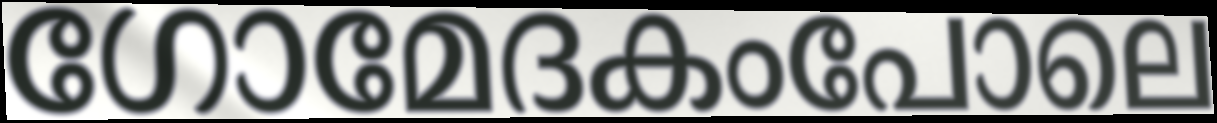
ഗോമേദകംപോലെ